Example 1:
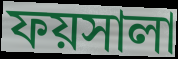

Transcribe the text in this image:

ফয়সালা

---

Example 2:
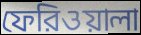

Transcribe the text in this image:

ফেরিওয়ালা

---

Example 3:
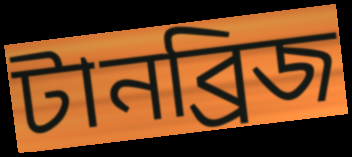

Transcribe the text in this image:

টানব্রিজ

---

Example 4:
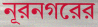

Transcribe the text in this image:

নূরনগরের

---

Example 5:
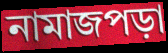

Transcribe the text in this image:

নামাজপড়া